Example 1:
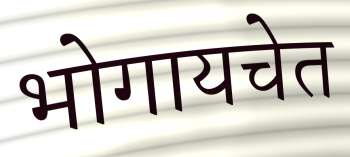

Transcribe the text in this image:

भोगायचेत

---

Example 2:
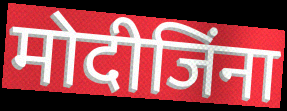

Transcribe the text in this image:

मोदीजिंना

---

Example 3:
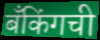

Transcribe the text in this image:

बँकिंगची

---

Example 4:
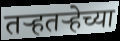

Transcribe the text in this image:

तऱ्हतऱ्हेच्या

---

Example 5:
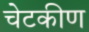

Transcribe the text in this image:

चेटकीण